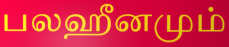
பலஹீனமும்